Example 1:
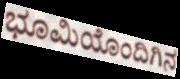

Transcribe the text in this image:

ಭೂಮಿಯೊಂದಿಗಿನ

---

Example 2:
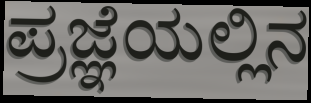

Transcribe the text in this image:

ಪ್ರಜ್ಞೆಯಲ್ಲಿನ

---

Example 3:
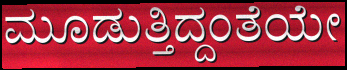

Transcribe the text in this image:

ಮೂಡುತ್ತಿದ್ದಂತೆಯೇ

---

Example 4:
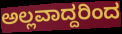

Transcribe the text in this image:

ಅಲ್ಲವಾದ್ದರಿಂದ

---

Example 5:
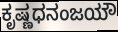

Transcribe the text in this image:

ಕೃಷ್ಣಧನಂಜಯೌ